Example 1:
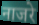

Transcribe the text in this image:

नाजरे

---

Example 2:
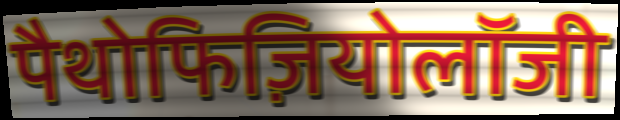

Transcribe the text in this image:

पैथोफिज़ियोलॉजी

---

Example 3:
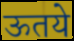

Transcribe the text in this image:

ऊतये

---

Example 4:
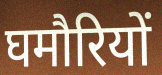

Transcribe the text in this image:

घमौरियों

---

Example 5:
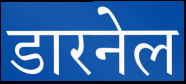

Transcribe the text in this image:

डारनेल